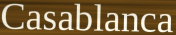
Casablanca